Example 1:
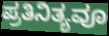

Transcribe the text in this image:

ಪ್ರತಿನಿತ್ಯವೂ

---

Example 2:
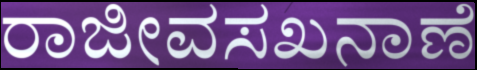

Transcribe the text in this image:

ರಾಜೀವಸಖನಾಣೆ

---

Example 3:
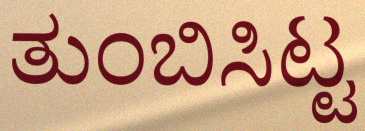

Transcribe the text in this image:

ತುಂಬಿಸಿಟ್ಟ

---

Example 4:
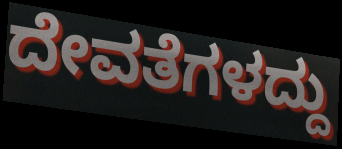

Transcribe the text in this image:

ದೇವತೆಗಳದ್ದು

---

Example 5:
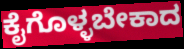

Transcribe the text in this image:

ಕೈಗೊಳ್ಳಬೇಕಾದ